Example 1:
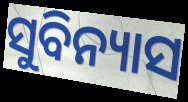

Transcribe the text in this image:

ସୁବିନ୍ୟାସ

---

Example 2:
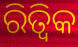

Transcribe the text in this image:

ରିତ୍ୱିକ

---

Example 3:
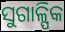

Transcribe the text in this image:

ସୁଗାଳ୍ପିକ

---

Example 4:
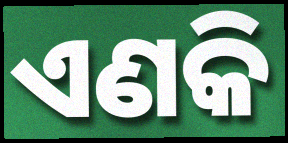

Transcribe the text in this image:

ଏଣକି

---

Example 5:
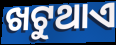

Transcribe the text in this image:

ଖଟୁଥାଏ